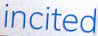
incited